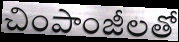
చింపాంజీలతో